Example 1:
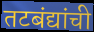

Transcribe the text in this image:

तटबंद्यांची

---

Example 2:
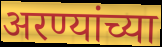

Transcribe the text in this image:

अरण्यांच्या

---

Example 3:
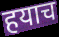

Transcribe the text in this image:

हयाच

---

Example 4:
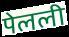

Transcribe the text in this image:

पेलली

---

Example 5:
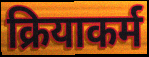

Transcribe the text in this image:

क्रियाकर्म